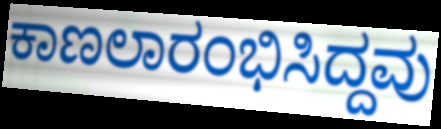
ಕಾಣಲಾರಂಭಿಸಿದ್ದವು